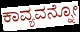
ಕಾವ್ಯವನ್ನೋ